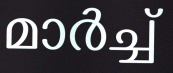
മാർച്ച്